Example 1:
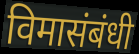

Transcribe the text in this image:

विमासंबंधी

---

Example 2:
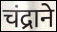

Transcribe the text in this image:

चंद्राने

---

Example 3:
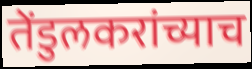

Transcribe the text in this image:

तेंडुलकरांच्याच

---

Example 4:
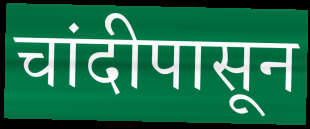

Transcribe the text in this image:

चांदीपासून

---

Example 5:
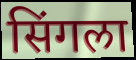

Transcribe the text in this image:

सिंगला